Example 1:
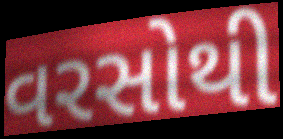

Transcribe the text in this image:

વરસોથી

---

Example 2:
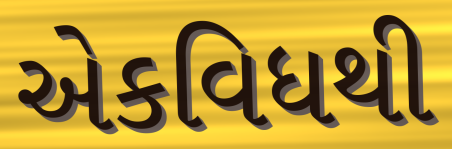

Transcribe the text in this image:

એકવિધથી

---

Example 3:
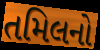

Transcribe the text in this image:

તમિલનો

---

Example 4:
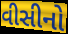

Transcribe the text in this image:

વીસીનો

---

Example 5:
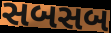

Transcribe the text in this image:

સબસબ